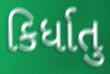
કિર્ધાતુ